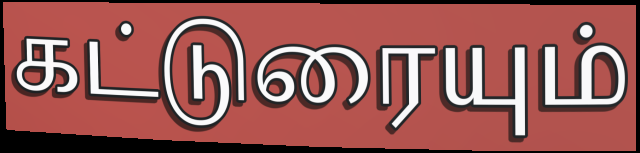
கட்டுரையும்